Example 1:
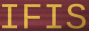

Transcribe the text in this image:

IFIS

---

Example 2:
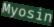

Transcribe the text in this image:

Myosin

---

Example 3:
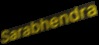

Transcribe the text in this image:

Sarabhendra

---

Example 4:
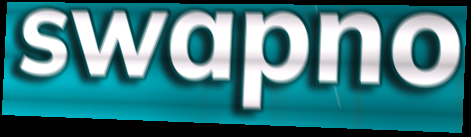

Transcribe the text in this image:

swapno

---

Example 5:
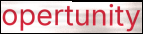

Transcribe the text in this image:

opertunity